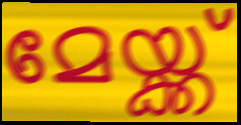
മേയ്ക്ക്